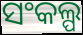
ସଂକଲ୍ପ